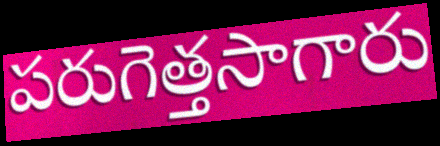
పరుగెత్తసాగారు